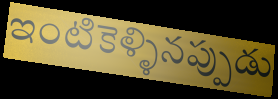
ఇంటికెళ్ళినప్పుడు